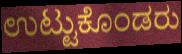
ಉಟ್ಟುಕೊಂಡರು